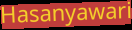
Hasanyawari